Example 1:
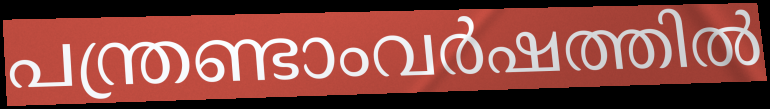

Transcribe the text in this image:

പന്ത്രണ്ടാംവർഷത്തിൽ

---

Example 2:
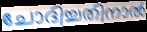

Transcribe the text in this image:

ചോദിച്ചതിനാൽ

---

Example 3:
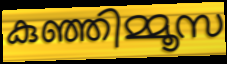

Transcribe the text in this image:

കുഞ്ഞിമ്മൂസ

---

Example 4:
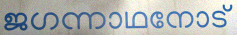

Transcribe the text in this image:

ജഗന്നാഥനോട്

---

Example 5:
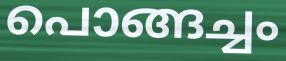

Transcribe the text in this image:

പൊങ്ങച്ചം